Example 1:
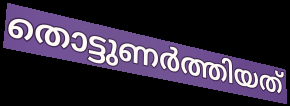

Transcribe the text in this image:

തൊട്ടുണർത്തിയത്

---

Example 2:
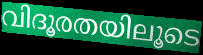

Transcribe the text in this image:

വിദൂരതയിലൂടെ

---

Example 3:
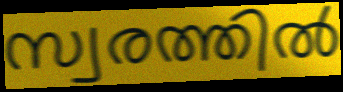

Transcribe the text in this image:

സ്വരത്തിൽ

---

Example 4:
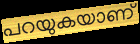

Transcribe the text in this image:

പറയുകയാണ്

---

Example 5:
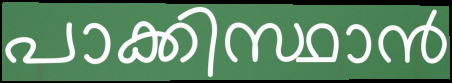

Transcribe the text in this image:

പാക്കിസ്ഥാൻ